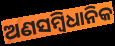
ଅଣସମ୍ବିଧାନିକ